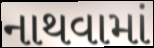
નાથવામાં